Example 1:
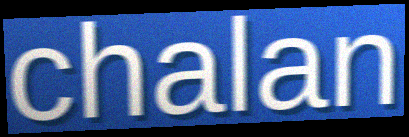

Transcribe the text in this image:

chalan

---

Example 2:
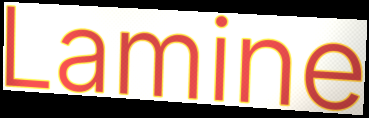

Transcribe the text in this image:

Lamine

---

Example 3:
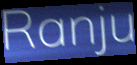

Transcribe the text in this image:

Ranju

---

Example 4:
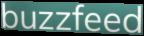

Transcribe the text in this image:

buzzfeed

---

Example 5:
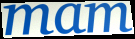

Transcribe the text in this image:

mam